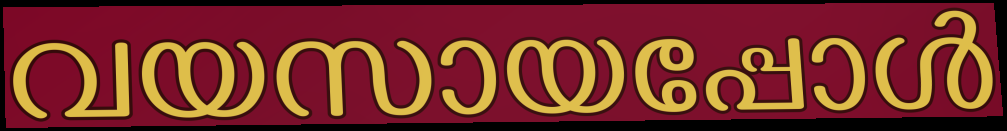
വയസായപ്പോൾ